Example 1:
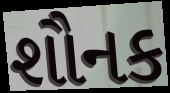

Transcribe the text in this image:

શૌનક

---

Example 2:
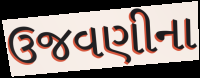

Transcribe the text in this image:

ઉજવણીના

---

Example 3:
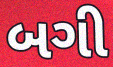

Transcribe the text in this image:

બગી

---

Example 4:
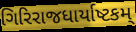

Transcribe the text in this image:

ગિરિરાજધાર્યાષ્ટકમ્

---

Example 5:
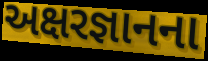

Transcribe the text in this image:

અક્ષરજ્ઞાનના